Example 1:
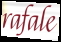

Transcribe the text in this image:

rafale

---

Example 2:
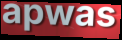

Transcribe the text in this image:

apwas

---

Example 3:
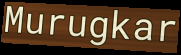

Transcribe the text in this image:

Murugkar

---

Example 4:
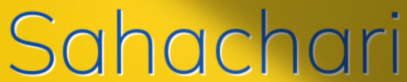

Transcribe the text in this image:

Sahachari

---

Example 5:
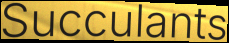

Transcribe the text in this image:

Succulants